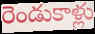
రెండుకాళ్లు